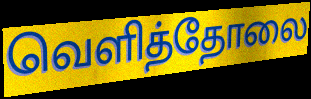
வெளித்தோலை